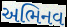
અભિનવ